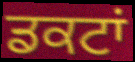
ਡਕਟਾਂ